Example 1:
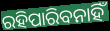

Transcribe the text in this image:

ରହିପାରିବନାହିଁ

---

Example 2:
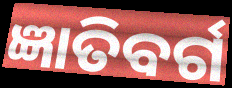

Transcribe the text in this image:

ଜ୍ଞାତିବର୍ଗ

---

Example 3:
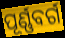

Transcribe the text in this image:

ପୂର୍ଣ୍ଣବର୍ଗ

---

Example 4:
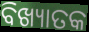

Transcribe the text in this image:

ବିଖ୍ୟାତକ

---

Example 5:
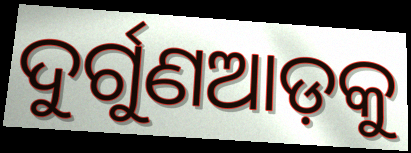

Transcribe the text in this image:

ଦୁର୍ଗୁଣଆଡ଼କୁ